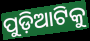
ପୁଡ଼ିଆଟିକୁ